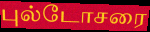
புல்டோசரை